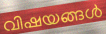
വിഷയങ്ങൾ